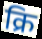
क्रि